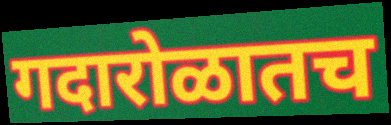
गदारोळातच